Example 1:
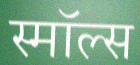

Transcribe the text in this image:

स्मॉल्स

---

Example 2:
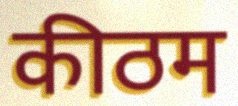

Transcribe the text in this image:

कीठम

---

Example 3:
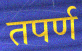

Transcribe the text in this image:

तपर्ण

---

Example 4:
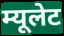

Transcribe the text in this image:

म्यूलेट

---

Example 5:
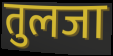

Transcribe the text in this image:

तुलजा